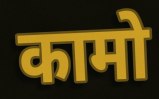
कामो